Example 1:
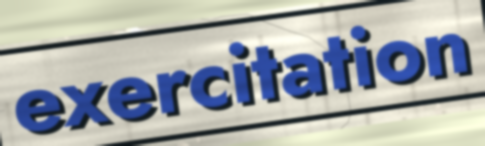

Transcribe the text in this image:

exercitation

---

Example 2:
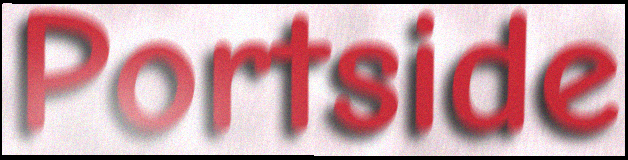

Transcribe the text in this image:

Portside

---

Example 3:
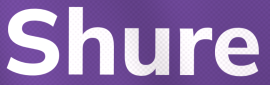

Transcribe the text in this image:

Shure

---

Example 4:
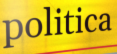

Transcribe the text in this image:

politica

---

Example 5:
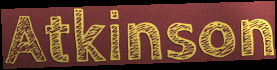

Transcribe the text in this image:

Atkinson